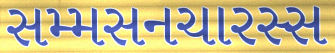
સમ્મસનચારસ્સ